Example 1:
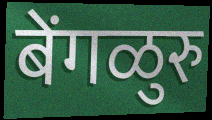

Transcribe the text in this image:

बेंगळुरु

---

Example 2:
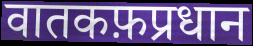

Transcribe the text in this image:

वातकफ़प्रधान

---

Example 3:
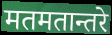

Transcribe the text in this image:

मतमतान्तरे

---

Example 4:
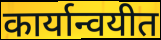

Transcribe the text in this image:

कार्यान्वयीत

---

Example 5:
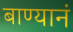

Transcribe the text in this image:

बाण्यानं